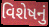
વિશેષનું